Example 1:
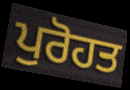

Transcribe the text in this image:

ਪੁਰੋਹਤ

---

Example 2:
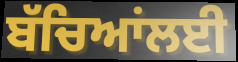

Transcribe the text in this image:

ਬੱਚਿਆਂਲਈ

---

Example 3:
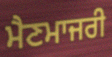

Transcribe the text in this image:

ਮੈਣਮਾਜਰੀ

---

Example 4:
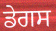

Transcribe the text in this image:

ਡੇਗਸ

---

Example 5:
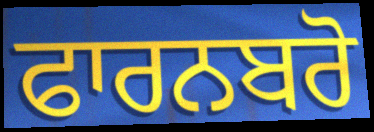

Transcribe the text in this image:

ਫਾਰਨਬਰੋ